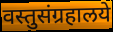
वस्तुसंग्रहालये